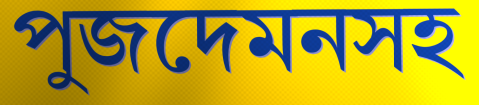
পুজদেমনসহ